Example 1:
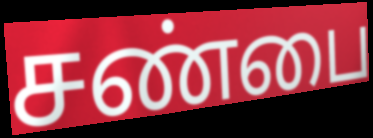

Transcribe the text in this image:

சண்பை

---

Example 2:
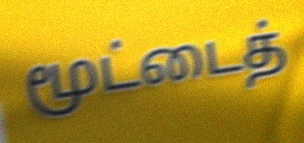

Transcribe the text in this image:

மூட்டைத்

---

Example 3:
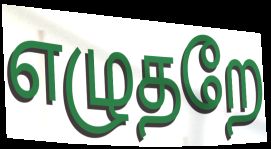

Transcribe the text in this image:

எழுதறே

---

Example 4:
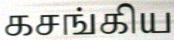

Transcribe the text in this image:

கசங்கிய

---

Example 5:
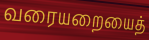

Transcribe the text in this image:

வரையறையைத்